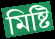
মিষ্টি